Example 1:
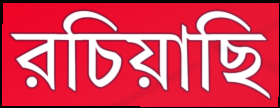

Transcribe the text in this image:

রচিয়াছি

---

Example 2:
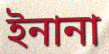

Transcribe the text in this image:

ইনানা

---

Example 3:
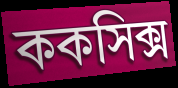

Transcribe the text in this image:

ককসিক্স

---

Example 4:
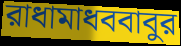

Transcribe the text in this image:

রাধামাধববাবুর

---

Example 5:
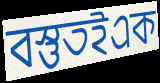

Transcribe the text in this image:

বস্তুতইএক